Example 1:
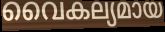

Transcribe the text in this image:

വൈകല്യമായ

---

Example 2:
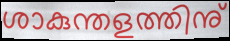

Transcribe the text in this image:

ശാകുന്തളത്തിനു്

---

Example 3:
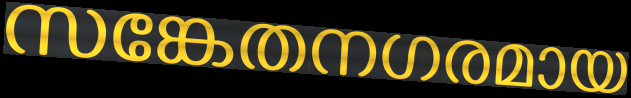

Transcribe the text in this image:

സങ്കേതനഗരമായ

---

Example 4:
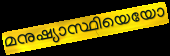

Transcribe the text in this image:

മനുഷ്യാസ്ഥിയെയോ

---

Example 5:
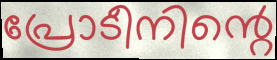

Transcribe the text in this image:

പ്രോടീനിന്റെ